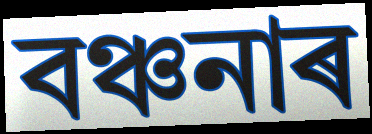
বঞ্চনাৰ